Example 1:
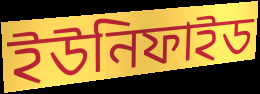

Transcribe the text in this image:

ইউনিফাইড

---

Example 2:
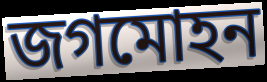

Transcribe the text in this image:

জগমোহন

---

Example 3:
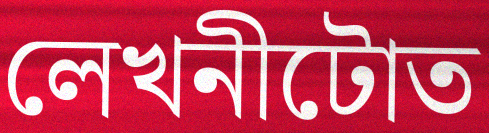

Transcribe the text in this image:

লেখনীটোত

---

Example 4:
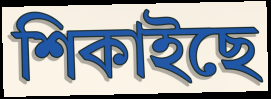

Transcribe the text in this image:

শিকাইছে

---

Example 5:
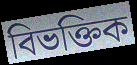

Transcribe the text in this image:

বিভক্তিক